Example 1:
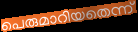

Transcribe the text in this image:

പെരുമാറിയതെന്ന്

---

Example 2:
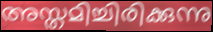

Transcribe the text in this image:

അസ്തമിച്ചിരിക്കുന്നു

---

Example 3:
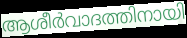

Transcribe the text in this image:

ആശീർവാദത്തിനായി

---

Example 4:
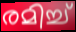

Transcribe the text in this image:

രമിച്ച്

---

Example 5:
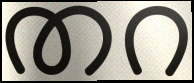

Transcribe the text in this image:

തറ